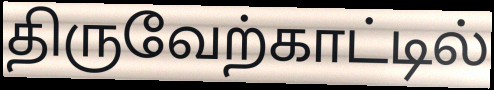
திருவேற்காட்டில்